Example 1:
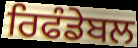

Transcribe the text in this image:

ਰਿਫੰਡੇਬਲ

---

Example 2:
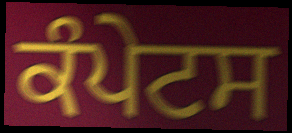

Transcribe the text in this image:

ਕੰਪੇਟਸ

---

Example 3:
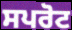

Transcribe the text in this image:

ਸਪਰੋਟ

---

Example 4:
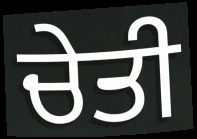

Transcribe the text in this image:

ਚੇਤੀ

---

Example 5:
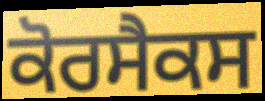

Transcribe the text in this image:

ਕੋਰਸੈਕਸ